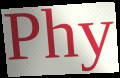
Phy